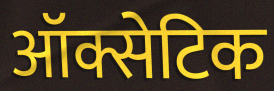
ऑक्सेटिक